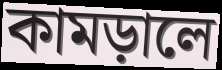
কামড়ালে